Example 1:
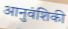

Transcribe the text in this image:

आनुवंशिकी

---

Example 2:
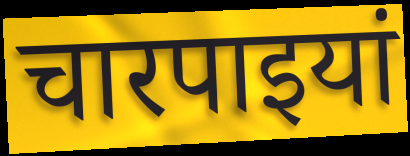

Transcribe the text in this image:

चारपाइयां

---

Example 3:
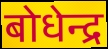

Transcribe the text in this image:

बोधेन्द्र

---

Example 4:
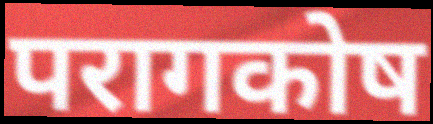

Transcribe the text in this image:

परागकोष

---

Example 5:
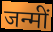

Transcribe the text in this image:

जन्मीं